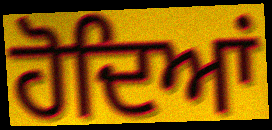
ਹੋਦਿਆਂ